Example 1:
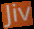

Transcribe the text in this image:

Jiv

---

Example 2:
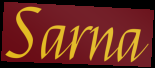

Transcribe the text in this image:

Sarna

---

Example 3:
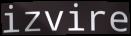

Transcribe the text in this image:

izvire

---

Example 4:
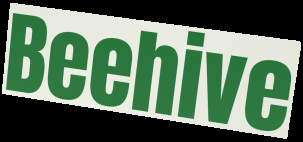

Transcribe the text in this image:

Beehive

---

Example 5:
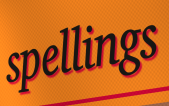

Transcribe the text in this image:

spellings